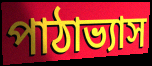
পাঠাভ্যাস